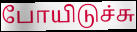
போயிடுச்சு